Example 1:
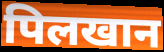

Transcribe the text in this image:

पिलखान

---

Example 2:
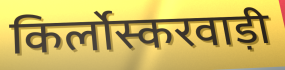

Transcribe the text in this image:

किर्लोस्करवाड़ी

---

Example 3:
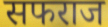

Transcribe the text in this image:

सफराज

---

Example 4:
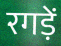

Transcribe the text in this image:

रगड़ें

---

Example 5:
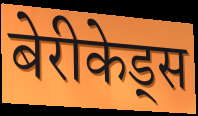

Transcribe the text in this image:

बेरीकेड्स